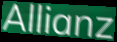
Allianz